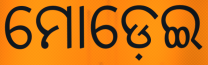
ମୋଡ଼େଇ